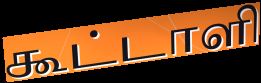
கூட்டாளி